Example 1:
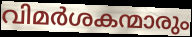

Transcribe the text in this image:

വിമർശകന്മാരും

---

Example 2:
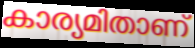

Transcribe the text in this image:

കാര്യമിതാണ്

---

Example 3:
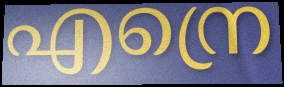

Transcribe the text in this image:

എന്രെ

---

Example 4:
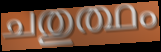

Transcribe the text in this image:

ചതുത്ഥം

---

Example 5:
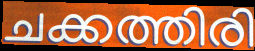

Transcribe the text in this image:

ചക്കത്തിരി